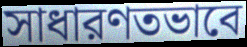
সাধারণতভাবে